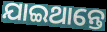
ଯାଇଥାନ୍ତେ